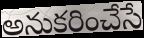
అనుకరించేసే